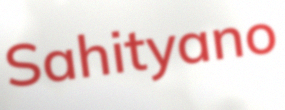
Sahityano